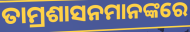
ତାମ୍ରଶାସନମାନଙ୍କରେ